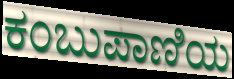
ಕಂಬುಪಾಣಿಯ